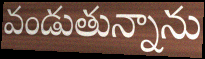
వండుతున్నాను